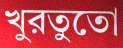
খুরতুতো